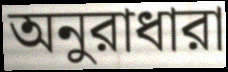
অনুরাধারা